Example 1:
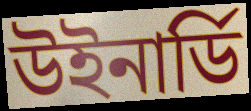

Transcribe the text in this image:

উইনার্ডি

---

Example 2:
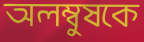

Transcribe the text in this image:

অলম্বুষকে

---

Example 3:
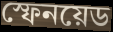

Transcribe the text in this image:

স্ফেনয়েড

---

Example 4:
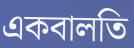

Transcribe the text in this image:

একবালতি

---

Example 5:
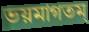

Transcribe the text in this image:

ভয়মাগতম্